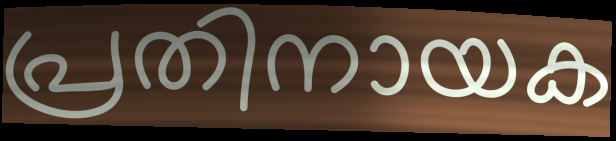
പ്രതിനായക